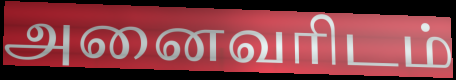
அனைவரிடம்